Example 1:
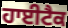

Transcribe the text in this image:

ਹਾਈਟੈਕ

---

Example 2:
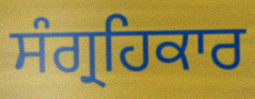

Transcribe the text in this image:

ਸੰਗ੍ਰਹਿਕਾਰ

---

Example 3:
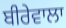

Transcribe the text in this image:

ਬੀਰੇਵਾਲਾ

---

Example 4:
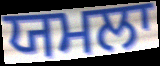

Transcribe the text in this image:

ਯਮਲਾ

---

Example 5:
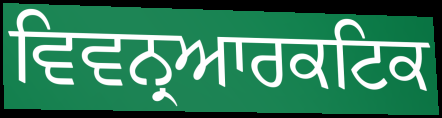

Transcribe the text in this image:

ਵਿਵਨ੍ਰਆਰਕਟਿਕ